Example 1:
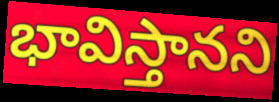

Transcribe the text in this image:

భావిస్తానని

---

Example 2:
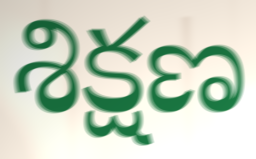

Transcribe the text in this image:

శిక్షణ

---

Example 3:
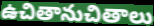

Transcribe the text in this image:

ఉచితానుచితాలు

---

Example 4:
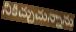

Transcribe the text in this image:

నీకిచ్చుచున్నాను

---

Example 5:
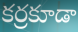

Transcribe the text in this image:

కర్రకూడా